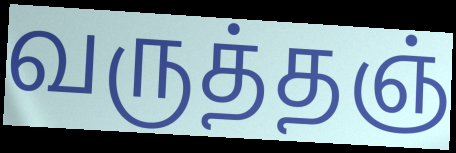
வருத்தஞ்